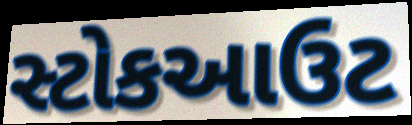
સ્ટોકઆઉટ